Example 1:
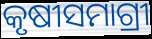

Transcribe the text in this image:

କୃଷୀସମାଗ୍ରୀ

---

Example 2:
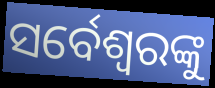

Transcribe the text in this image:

ସର୍ବେଶ୍ୱରଙ୍କୁ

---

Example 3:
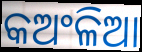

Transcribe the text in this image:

କଅଂଳିଆ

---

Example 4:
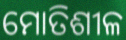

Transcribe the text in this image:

ମୋତିଶୀଳ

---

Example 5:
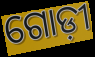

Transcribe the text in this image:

ଗୋଡ଼ୀ